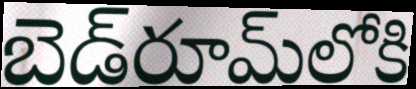
బెడ్‌రూమ్‌లోకి